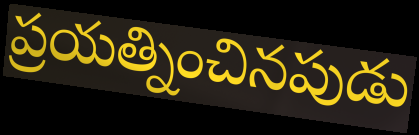
ప్రయత్నించినపుడు